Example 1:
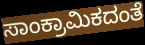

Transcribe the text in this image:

ಸಾಂಕ್ರಾಮಿಕದಂತೆ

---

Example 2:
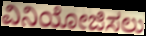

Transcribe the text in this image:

ವಿನಿಯೋಜಿಸಲು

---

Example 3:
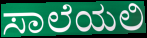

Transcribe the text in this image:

ಸಾಲೆಯಲಿ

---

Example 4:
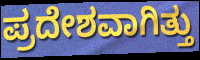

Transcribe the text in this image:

ಪ್ರದೇಶವಾಗಿತ್ತು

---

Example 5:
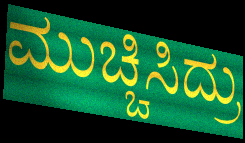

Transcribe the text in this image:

ಮುಚ್ಚಿಸಿದ್ರು